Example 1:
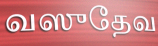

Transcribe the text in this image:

வஸுதேவ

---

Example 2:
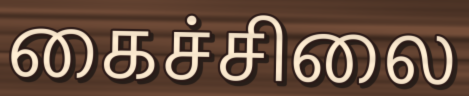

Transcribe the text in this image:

கைச்சிலை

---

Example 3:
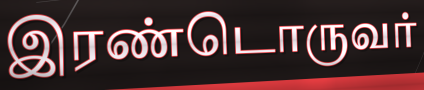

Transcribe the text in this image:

இரண்டொருவர்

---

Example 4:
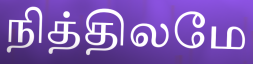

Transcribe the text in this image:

நித்திலமே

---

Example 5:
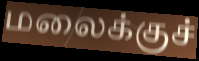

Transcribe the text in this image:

மலைக்குச்